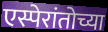
एस्पेरांतोच्या